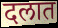
दलात